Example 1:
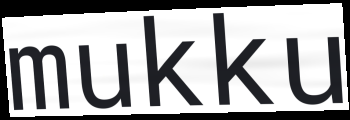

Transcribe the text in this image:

mukku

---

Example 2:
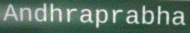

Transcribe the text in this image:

Andhraprabha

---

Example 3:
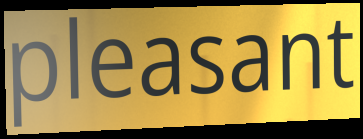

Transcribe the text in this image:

pleasant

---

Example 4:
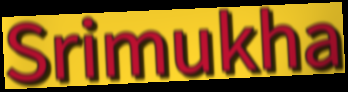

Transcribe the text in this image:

Srimukha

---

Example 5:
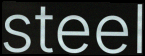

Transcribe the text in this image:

steel